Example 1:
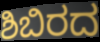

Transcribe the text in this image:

ಶಿಬಿರದ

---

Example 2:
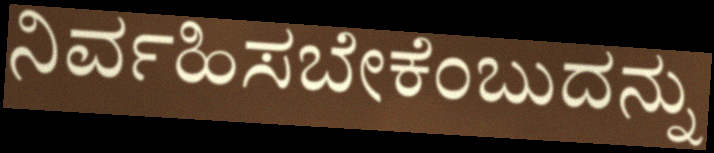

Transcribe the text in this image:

ನಿರ್ವಹಿಸಬೇಕೆಂಬುದನ್ನು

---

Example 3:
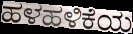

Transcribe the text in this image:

ಹಳಹಳಿಕೆಯ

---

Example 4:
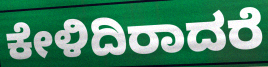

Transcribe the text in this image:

ಕೇಳಿದಿರಾದರೆ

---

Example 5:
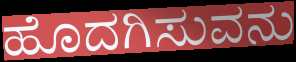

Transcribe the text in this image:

ಹೊದಗಿಸುವನು